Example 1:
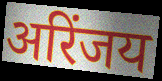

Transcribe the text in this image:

अरिंजय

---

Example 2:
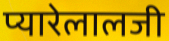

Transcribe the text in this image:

प्यारेलालजी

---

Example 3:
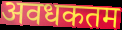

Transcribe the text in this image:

अवधकतम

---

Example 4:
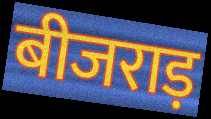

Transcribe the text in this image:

बीजराड़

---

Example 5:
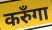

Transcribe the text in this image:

करुँगा